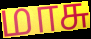
மாசு